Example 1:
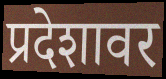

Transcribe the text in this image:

प्रदेशावर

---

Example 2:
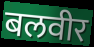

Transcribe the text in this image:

बलवीर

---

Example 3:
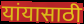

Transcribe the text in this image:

यांयासाठी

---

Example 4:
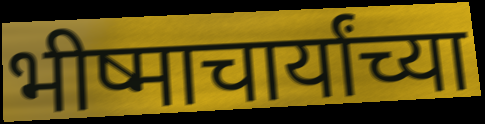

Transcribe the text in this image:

भीष्माचार्यांच्या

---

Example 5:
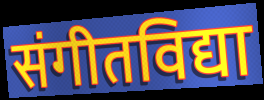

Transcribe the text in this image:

संगीतविद्या